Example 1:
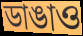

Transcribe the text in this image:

ডাঙাও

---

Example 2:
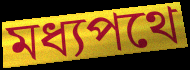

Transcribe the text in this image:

মধ্যপথে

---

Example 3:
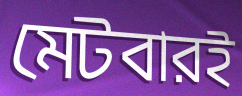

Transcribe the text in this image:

মেটবারই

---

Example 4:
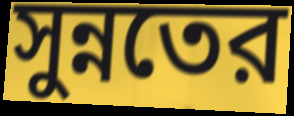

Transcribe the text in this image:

সুন্নতের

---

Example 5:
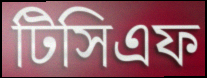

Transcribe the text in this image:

টিসিএফ